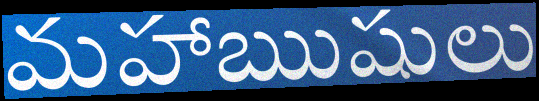
మహాఋషులు